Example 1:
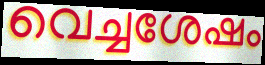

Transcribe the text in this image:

വെച്ചശേഷം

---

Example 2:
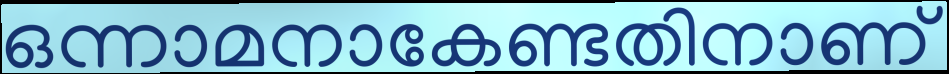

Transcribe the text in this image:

ഒന്നാമനാകേണ്ടതിനാണ്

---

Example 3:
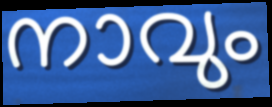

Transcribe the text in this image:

നാവും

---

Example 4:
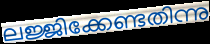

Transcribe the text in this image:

ലജ്ജിക്കേണ്ടതിന്നു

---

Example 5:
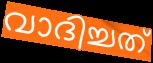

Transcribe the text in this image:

വാദിച്ചത്